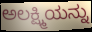
ಅಲಕ್ಷ್ಮಿಯನ್ನು